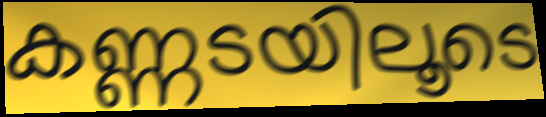
കണ്ണടയിലൂടെ